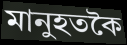
মানুহতকৈ